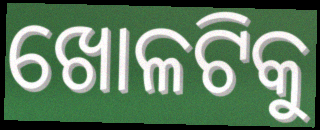
ଖୋଳଟିକୁ